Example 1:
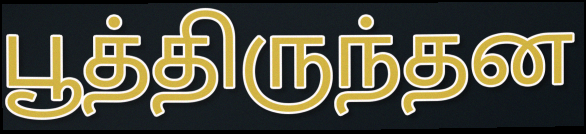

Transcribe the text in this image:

பூத்திருந்தன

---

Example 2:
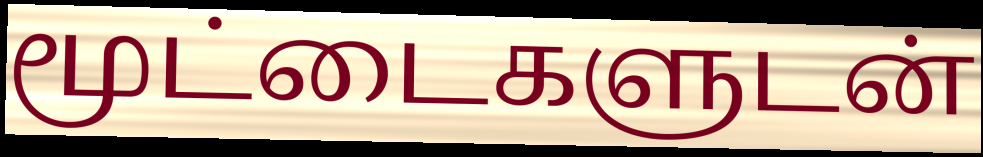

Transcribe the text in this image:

மூட்டைகளுடன்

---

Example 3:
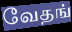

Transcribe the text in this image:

வேதங்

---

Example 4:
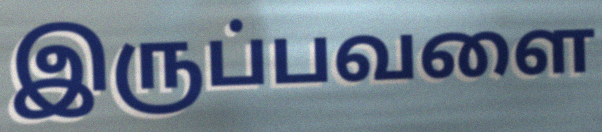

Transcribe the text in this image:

இருப்பவளை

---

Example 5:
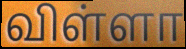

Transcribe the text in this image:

விள்ளா